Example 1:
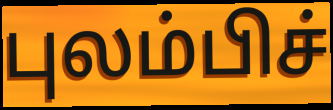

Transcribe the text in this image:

புலம்பிச்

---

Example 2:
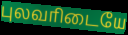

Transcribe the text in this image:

புலவரிடையே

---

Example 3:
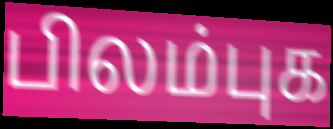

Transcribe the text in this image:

பிலம்புக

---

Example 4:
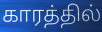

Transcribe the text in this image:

காரத்தில்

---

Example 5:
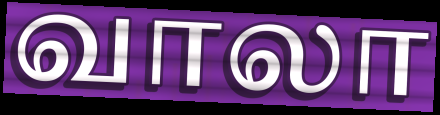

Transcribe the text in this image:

வாலா